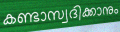
കണ്ടാസ്വദിക്കാനും